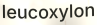
leucoxylon